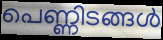
പെണ്ണിടങ്ങൾ